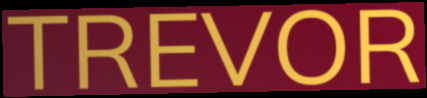
TREVOR